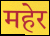
महेर